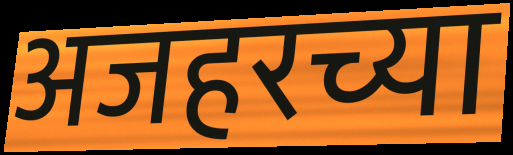
अजहरच्या